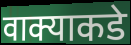
वाक्याकडे